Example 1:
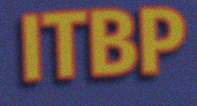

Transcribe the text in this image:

ITBP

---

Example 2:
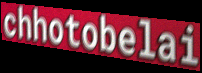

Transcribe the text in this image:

chhotobelai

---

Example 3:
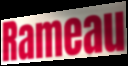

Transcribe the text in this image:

Rameau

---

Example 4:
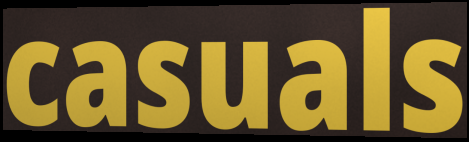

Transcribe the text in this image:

casuals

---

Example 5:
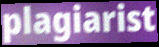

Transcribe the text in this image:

plagiarist